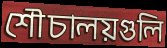
শৌচালয়গুলি